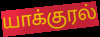
யாக்குரல்